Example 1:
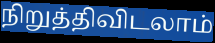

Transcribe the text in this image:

நிறுத்திவிடலாம்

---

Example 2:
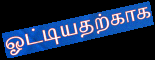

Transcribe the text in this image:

ஓட்டியதற்காக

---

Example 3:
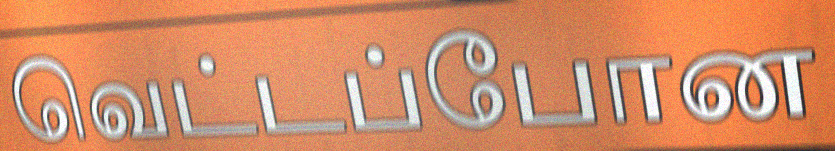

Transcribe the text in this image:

வெட்டப்போன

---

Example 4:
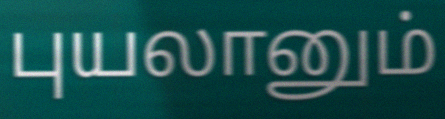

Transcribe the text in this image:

புயலானும்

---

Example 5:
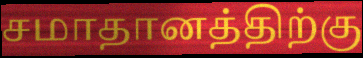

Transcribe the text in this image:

சமாதானத்திற்கு